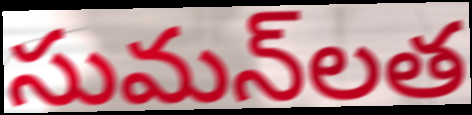
సుమన్‌లత